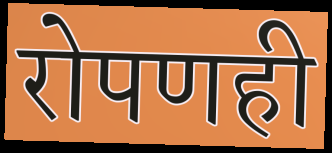
रोपणही